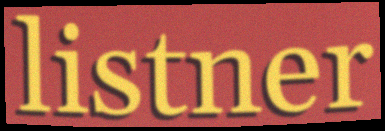
listner